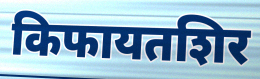
किफायतशिर